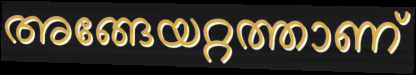
അങ്ങേയറ്റത്താണ്